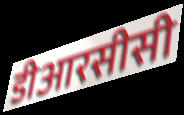
डीआरसीसी